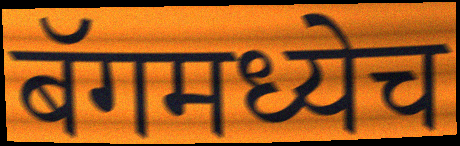
बॅगमध्येच